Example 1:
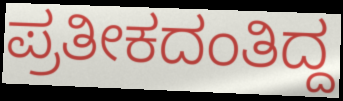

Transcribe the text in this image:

ಪ್ರತೀಕದಂತಿದ್ದ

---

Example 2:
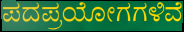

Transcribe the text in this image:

ಪದಪ್ರಯೋಗಗಳಿವೆ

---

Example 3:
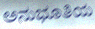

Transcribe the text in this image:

ಅನುಭೂತಿಯ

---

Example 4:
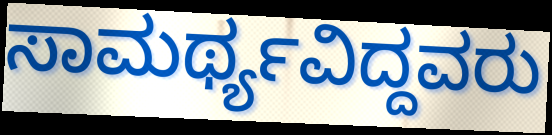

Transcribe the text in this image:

ಸಾಮರ್ಥ್ಯವಿದ್ದವರು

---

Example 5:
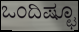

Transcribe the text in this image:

ಒಂದಿಷ್ಟೂ